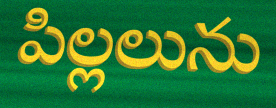
పిల్లలును